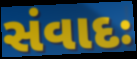
સંવાદઃ